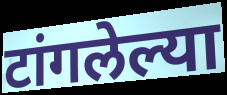
टांगलेल्या